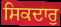
ਸਿਕਦਾਰੁ